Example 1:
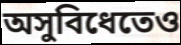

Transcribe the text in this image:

অসুবিধেতেও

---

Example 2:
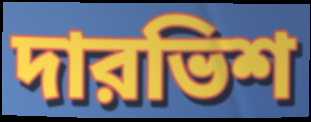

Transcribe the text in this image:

দারভিশ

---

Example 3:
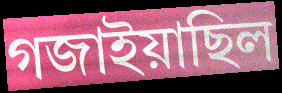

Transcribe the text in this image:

গজাইয়াছিল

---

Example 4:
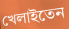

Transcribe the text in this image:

খেলাইতেন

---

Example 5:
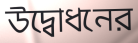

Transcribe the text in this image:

উদ্বোধনের